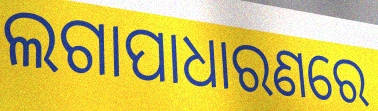
ଲଗାପାଧାରଣରେ